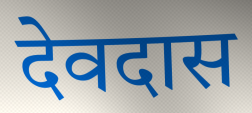
देवदास